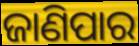
ଜାଣିପାର